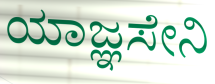
ಯಾಜ್ಞಸೇನಿ